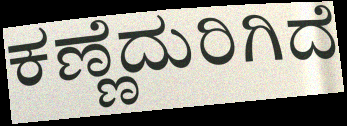
ಕಣ್ಣೆದುರಿಗಿದೆ